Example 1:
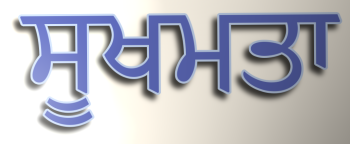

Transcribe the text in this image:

ਸੂਖਮਤਾ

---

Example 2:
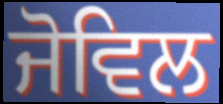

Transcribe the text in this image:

ਜੋਵਿਲ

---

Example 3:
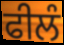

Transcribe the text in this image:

ਫੀਲੰ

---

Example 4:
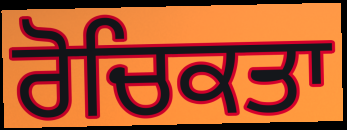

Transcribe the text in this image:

ਰੋਚਿਕਤਾ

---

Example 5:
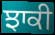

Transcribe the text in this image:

ਝਾਕੀ